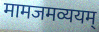
मामजमव्ययम्